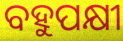
ବହୁପକ୍ଷୀ